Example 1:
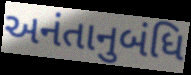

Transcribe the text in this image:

અનંતાનુબંધિ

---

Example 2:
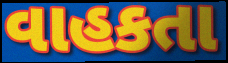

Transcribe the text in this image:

વાહકતા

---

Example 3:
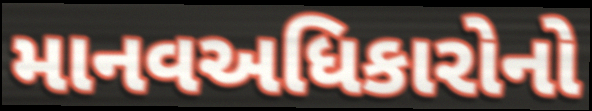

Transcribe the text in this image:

માનવઅધિકારોનો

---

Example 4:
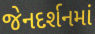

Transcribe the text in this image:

જેનદર્શનમાં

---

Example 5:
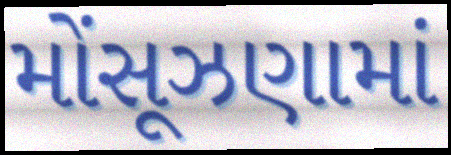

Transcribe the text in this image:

મોંસૂઝણામાં